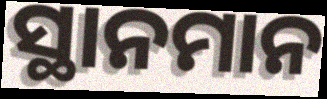
ସ୍ଥାନମାନ